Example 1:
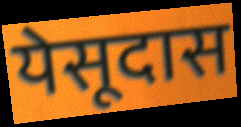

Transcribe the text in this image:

येसूदास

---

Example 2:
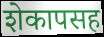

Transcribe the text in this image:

शेकापसह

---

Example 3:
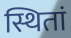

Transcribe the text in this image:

स्थितां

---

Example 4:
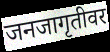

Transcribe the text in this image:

जनजागृतीवर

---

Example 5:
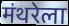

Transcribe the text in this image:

मंथरेला